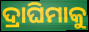
ଦ୍ରାଘିମାକୁ